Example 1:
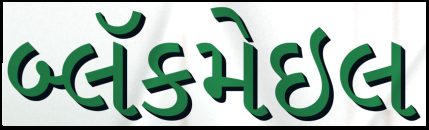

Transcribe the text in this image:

બ્લૅકમેઇલ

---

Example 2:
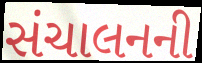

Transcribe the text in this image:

સંચાલનની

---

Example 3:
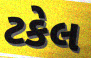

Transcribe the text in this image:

ટકેલ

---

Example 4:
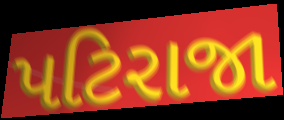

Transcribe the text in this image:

પટિરાજા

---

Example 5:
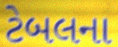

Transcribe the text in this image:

ટેબલના